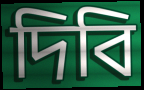
দিবি